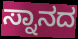
ಸ್ನಾನದ